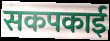
सकपकाई